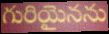
గురియైనను